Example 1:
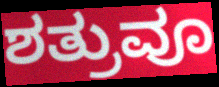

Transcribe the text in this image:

ಶತ್ರುವೂ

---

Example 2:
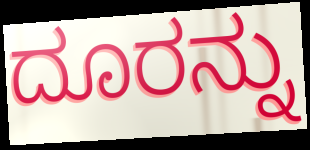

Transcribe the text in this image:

ದೂರನ್ನು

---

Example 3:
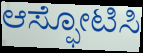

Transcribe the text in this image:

ಆಸ್ಫೋಟಿಸಿ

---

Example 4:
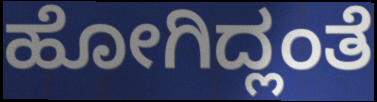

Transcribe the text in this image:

ಹೋಗಿದ್ಲಂತೆ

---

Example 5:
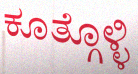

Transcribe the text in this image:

ಕೂತ್ಗೊಳ್ಳಿ